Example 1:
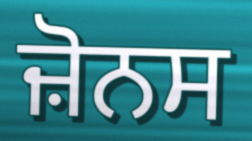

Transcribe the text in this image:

ਜ਼ੋਨਸ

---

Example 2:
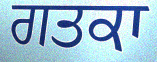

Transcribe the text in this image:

ਗਤਕਾ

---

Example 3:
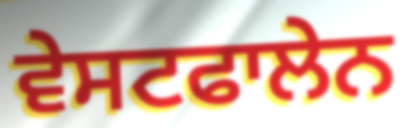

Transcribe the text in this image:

ਵੇਸਟਫਾਲੇਨ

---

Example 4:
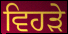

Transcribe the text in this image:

ਵਿਹੜੇ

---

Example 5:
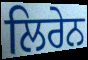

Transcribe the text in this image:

ਲਿਰੇਨ